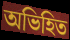
অভিহিত